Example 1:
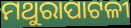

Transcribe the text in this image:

ମଥୁରାପାଟଳୀ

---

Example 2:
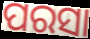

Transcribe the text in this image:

ପରସା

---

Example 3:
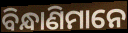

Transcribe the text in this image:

ବିନ୍ଧାଣିମାନେ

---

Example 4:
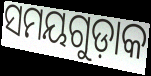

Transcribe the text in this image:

ସମୟଗୁଡ଼ାକ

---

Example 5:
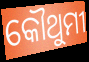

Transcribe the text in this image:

କୌଥୁମୀ